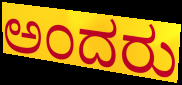
ಅಂದರು